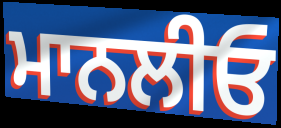
ਮਾਨਲੀਓ